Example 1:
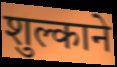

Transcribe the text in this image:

शुल्काने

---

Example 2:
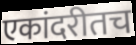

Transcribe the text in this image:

एकांदरीतच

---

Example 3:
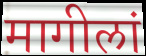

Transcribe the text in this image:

मागीलां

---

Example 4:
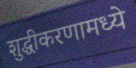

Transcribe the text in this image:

शुद्धीकरणामध्ये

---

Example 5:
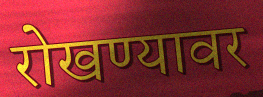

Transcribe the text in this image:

रोखण्यावर